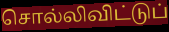
சொல்லிவிட்டுப்